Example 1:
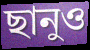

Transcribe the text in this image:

ছানুও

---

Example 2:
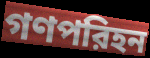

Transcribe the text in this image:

গণপরিহন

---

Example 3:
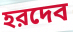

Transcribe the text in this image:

হরদেব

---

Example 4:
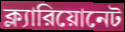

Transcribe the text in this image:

ক্ল্যারিয়োনেট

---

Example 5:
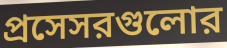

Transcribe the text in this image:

প্রসেসরগুলোর